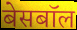
बेसबॉल